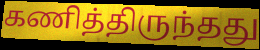
கணித்திருந்தது